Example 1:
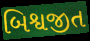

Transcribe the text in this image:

બિશ્વજીત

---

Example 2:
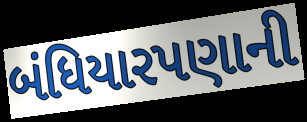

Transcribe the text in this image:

બંધિયારપણાની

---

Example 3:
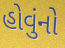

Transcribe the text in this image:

હોવુંનો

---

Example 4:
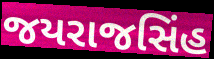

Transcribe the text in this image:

જયરાજસિંહ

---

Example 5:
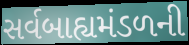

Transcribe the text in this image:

સર્વબાહ્યમંડળની